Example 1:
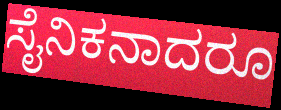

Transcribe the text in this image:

ಸೈನಿಕನಾದರೂ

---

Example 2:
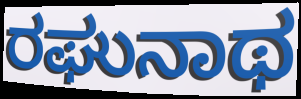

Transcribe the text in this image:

ರಘುನಾಥ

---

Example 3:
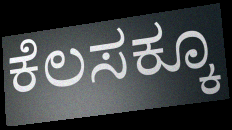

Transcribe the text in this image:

ಕೆಲಸಕ್ಕೂ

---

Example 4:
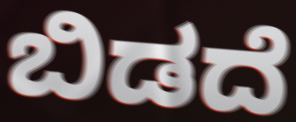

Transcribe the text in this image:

ಬಿಡದೆ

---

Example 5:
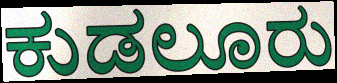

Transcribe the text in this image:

ಕುಡಲೂರು